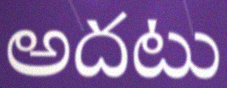
అదటు